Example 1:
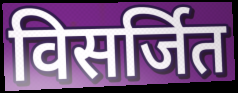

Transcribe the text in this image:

विसर्जित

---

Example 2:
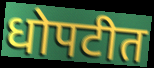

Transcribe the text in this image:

धोपटीत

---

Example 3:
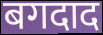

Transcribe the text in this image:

बगदाद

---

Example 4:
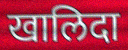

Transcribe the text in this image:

खालिदा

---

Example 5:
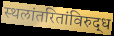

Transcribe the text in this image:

स्थलांतरितांविरुद्ध